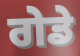
ਗੇਡੇ